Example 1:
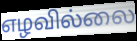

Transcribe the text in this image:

எழவில்லை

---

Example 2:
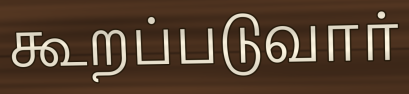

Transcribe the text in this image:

கூறப்படுவார்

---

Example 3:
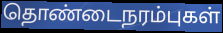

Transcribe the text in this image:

தொண்டைநரம்புகள்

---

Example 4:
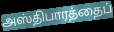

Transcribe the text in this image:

அஸ்திபாரத்தைப்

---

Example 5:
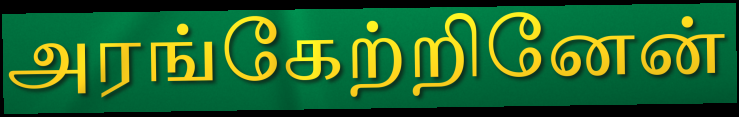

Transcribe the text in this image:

அரங்கேற்றினேன்